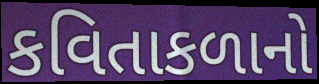
કવિતાકળાનો